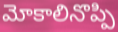
మోకాలినొప్పి